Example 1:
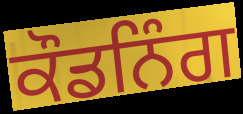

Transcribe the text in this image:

ਕੌਡਨਿੰਗ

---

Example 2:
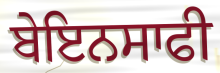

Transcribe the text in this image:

ਬੇਇਨਸਾਫੀ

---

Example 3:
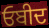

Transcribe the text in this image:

ਓਬੀਦ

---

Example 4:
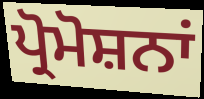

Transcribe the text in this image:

ਪ੍ਰੋਮੋਸ਼ਨਾਂ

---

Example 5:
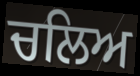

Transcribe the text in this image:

ਚਲਿਅ